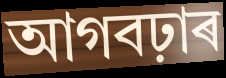
আগবঢ়াৰ